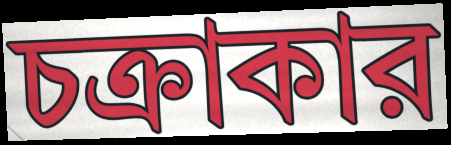
চক্রাকার